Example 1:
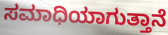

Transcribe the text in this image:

ಸಮಾಧಿಯಾಗುತ್ತಾನೆ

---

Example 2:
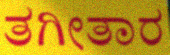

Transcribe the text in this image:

ತಗೀತಾರ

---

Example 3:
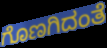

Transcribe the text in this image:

ಗೊಣಗಿದಂತೆ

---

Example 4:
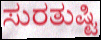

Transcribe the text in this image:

ಸುರತುಷ್ಟಿ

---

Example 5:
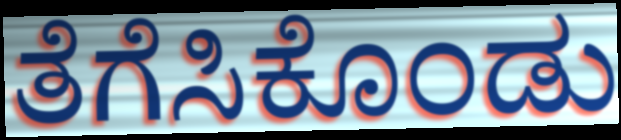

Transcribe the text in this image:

ತೆಗೆಸಿಕೊಂಡು